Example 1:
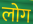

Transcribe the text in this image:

लोग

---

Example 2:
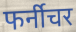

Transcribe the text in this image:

फर्नीचर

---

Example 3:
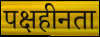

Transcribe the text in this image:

पक्षहीनता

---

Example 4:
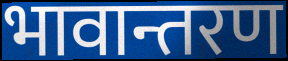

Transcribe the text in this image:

भावान्तरण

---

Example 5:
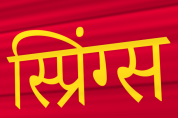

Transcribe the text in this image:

स्प्रिंग्स